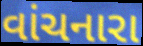
વાંચનારા